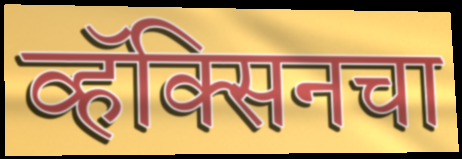
व्हॅक्सिनचा